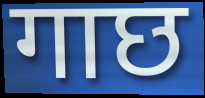
गाछ